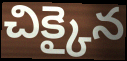
చిక్కైన